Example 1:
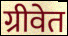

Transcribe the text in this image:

ग्रीवेत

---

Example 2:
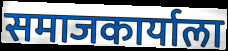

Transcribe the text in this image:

समाजकार्याला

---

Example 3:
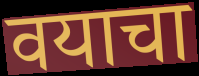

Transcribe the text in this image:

वयाचा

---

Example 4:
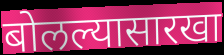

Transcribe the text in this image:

बोलल्यासारखा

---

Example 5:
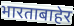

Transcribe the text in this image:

भारताबाहेर